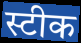
स्टीक